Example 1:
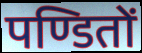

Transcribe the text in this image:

पण्डितों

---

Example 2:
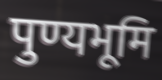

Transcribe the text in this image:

पुण्यभूमि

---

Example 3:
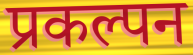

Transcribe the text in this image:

प्रकल्पन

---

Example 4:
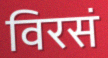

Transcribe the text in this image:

विरसं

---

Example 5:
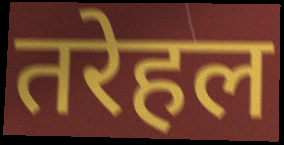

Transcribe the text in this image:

तरेहल